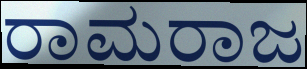
ರಾಮರಾಜ